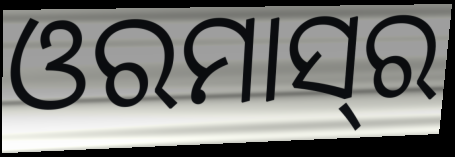
ଓରମାସ୍‌ର